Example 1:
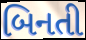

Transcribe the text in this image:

બિનતી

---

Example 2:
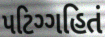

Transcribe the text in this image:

પટિગ્ગહિતં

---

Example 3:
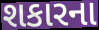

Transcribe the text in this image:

શકારના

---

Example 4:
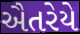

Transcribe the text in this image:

ઐતરેયે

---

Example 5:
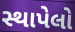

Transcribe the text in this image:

સ્થાપેલો